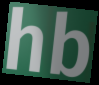
hb